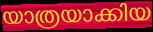
യാത്രയാക്കിയ